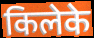
किलेके